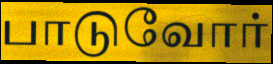
பாடுவோர்